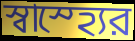
স্বাস্হ্যের